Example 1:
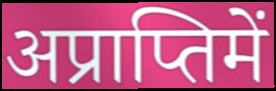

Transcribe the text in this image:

अप्राप्तिमें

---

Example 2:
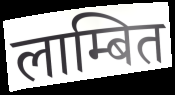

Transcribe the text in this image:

लाम्बित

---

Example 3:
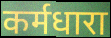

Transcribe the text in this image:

कर्मधारा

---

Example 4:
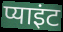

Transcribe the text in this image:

प्याइंट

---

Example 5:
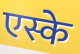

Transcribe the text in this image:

एस्के